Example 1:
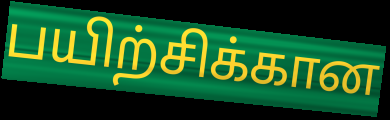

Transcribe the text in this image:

பயிற்சிக்கான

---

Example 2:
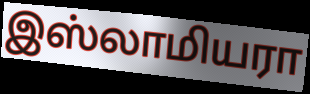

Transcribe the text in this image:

இஸ்லாமியரா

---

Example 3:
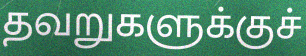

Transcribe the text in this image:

தவறுகளுக்குச்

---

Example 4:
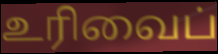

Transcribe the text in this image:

உரிவைப்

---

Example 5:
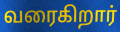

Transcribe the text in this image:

வரைகிறார்